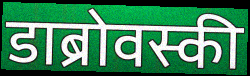
डाब्रोवस्की